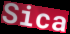
Sica